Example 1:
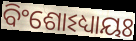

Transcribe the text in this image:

ବିଂଶୋଽଧ୍ୟାୟଃ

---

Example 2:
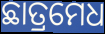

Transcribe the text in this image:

ଛାତ୍ରମେଧ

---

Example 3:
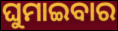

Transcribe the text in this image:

ଘୁମାଇବାର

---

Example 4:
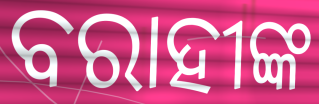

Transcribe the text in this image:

ବରାହୀଙ୍କ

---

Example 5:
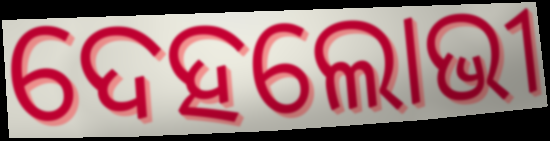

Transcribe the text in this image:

ଦେହଲୋଭୀ